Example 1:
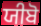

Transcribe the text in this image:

ਯੀਬੋ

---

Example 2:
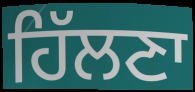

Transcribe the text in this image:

ਹਿੱਲਣਾ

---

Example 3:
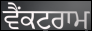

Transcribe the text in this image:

ਵੈਂਕਟਰਾਮ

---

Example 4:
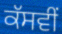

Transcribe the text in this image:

ਕੱਸਵੀਂ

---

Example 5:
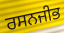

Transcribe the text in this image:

ਰਸਨਜੀਭ